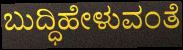
ಬುದ್ಧಿಹೇಳುವಂತೆ